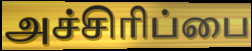
அச்சிரிப்பை